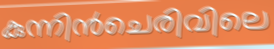
കുന്നിൻചെരിവിലെ